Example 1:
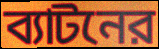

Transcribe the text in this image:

ব্যাটনের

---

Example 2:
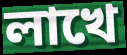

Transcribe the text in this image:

লাখে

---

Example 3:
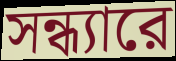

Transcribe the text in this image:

সন্ধ্যারে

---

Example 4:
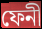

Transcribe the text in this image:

ফেনী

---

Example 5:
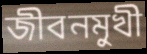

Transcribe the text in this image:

জীবনমুখী